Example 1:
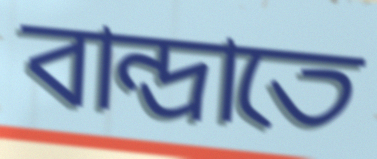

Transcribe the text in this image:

বান্দ্রাতে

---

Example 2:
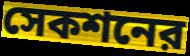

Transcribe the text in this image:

সেকশনের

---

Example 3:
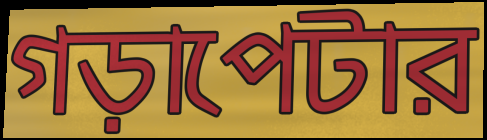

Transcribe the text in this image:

গড়াপেটার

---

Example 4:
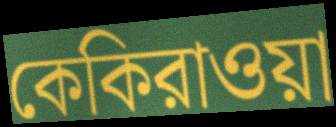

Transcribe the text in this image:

কেকিরাওয়া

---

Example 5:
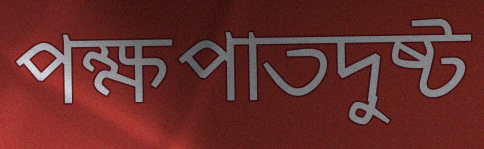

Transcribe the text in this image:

পক্ষপাতদুষ্ট